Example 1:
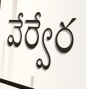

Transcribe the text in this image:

వేర్వేర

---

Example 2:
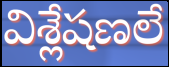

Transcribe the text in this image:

విశ్లేషణలే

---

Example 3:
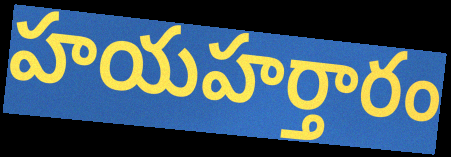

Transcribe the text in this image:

హయహర్తారం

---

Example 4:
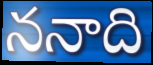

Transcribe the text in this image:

ననాది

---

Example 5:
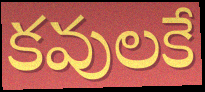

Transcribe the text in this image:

కవులకే